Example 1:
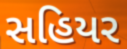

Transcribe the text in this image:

સહિયર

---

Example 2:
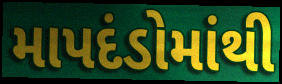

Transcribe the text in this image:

માપદંડોમાંથી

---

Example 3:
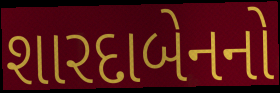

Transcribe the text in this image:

શારદાબેનનો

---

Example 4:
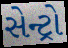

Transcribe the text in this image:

સેન્ટ્રો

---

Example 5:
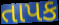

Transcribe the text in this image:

તાપક